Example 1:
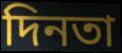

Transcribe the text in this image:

দিনতা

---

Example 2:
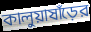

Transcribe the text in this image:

কালুয়াষাঁড়ের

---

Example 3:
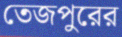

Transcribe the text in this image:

তেজপুরের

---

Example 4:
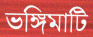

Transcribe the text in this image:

ভঙ্গিমাটি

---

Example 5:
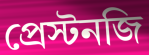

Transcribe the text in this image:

প্রেস্টনজি